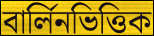
বার্লিনভিত্তিক